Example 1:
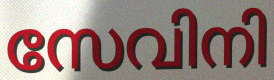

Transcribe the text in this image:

സേവിനി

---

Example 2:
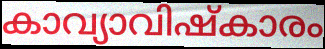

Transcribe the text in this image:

കാവ്യാവിഷ്കാരം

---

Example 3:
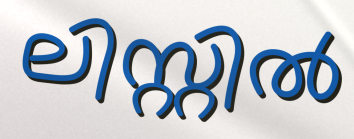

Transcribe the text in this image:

ലിസ്റ്റിൽ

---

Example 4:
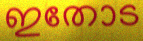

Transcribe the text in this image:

ഇതോട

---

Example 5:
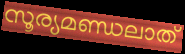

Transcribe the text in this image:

സൂര്യമണ്ഡലാത്